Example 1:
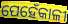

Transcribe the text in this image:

ପେହେଁକାଳୀ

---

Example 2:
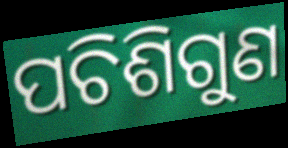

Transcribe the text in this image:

ପଚିଶିଗୁଣ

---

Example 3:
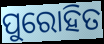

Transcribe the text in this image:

ପୁରୋହିତ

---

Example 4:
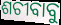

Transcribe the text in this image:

ଶଚୀବାବୁ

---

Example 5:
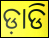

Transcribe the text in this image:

ଡ଼ାଡି